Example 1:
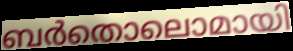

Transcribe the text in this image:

ബർതൊലൊമായി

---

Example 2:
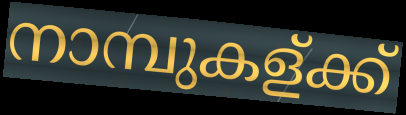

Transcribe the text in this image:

നാമ്പുകള്ക്ക്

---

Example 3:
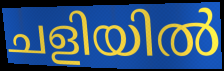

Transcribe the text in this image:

ചളിയിൽ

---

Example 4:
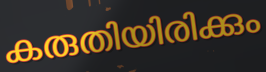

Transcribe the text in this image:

കരുതിയിരിക്കും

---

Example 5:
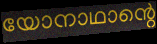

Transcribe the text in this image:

യോനാഥാന്റെ